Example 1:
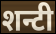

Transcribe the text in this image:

शन्टी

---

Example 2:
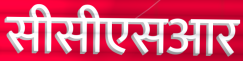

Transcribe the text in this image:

सीसीएसआर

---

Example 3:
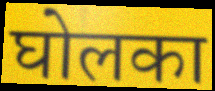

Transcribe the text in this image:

घोलका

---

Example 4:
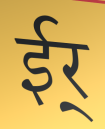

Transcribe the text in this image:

ईर्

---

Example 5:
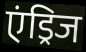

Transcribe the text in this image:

एंड्रिज